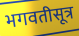
भगवतीसूत्र